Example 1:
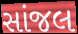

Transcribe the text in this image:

સાંજલ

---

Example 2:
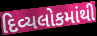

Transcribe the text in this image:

દિવ્યલોકમાંથી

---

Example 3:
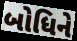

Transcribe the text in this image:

બોધિને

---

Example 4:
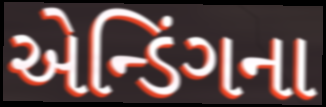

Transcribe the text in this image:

એન્ડિંગના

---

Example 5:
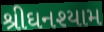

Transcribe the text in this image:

શ્રીઘનશ્યામ